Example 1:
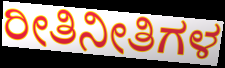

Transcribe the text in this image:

ರೀತಿನೀತಿಗಳ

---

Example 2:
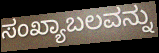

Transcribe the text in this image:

ಸಂಖ್ಯಾಬಲವನ್ನು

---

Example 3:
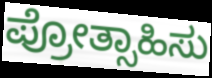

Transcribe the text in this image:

ಪ್ರೋತ್ಸಾಹಿಸು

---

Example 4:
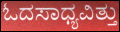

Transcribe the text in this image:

ಓದಸಾಧ್ಯವಿತ್ತು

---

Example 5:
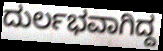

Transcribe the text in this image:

ದುರ್ಲಭವಾಗಿದ್ದ